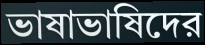
ভাষাভাষিদের